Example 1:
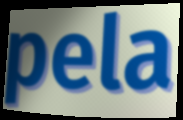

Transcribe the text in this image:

pela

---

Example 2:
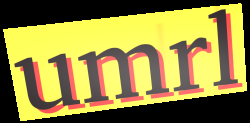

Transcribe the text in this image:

umrl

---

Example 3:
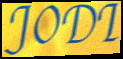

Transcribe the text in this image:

JODI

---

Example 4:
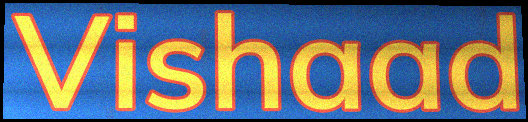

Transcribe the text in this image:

Vishaad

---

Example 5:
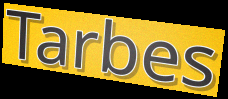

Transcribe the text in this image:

Tarbes